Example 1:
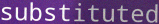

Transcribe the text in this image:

substituted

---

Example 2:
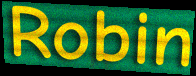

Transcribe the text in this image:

Robin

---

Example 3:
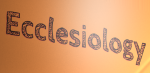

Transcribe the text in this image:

Ecclesiology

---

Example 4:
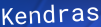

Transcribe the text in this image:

Kendras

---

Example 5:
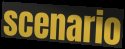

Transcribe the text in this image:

scenario